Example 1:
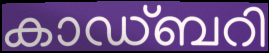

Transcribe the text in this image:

കാഡ്ബറി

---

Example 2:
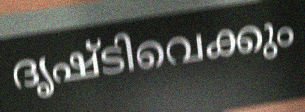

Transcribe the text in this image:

ദൃഷ്ടിവെക്കും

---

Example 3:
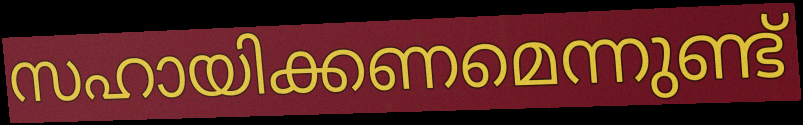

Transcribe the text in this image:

സഹായിക്കണമെന്നുണ്ട്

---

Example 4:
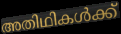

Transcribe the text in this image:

അതിഥികൾക്ക്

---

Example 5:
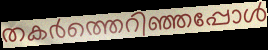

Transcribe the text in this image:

തകർത്തെറിഞ്ഞപ്പോൾ